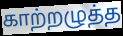
காற்றழுத்த